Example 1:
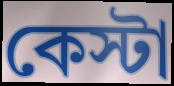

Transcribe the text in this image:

কেস্টা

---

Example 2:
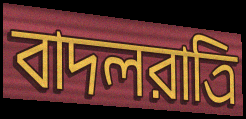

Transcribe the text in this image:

বাদলরাত্রি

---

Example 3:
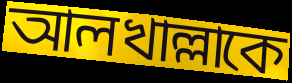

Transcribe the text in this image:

আলখাল্লাকে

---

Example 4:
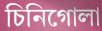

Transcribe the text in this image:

চিনিগোলা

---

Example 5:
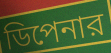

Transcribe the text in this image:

ডিপেনার